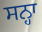
ਸਨ੍ਹਾ